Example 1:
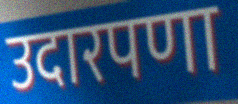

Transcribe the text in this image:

उदारपणा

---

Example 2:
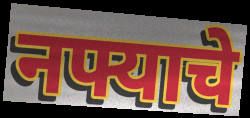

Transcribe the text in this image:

नफ्याचे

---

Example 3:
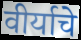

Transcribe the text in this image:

वीर्याचे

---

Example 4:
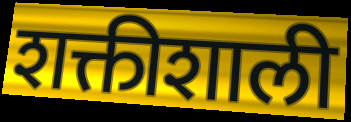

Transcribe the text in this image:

शक्तीशाली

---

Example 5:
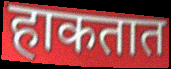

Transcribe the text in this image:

हाकतात